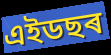
এইডছৰ